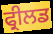
ਫ੍ਰੀਲਡ